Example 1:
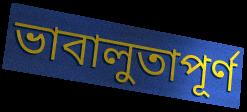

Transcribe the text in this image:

ভাবালুতাপূর্ণ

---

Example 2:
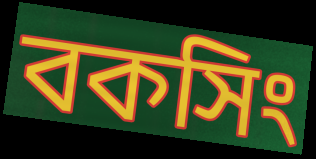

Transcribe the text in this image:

বকসিং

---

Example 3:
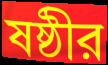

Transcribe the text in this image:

ষষ্ঠীর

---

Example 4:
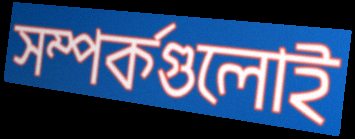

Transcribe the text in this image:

সম্পর্কগুলোই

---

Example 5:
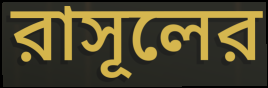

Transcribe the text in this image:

রাসূলের